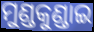
ମୁଣ୍ଡକୁଣ୍ଡାଇ